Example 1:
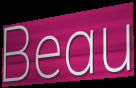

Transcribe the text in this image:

Beau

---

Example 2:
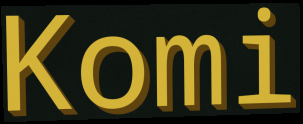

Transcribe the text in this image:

Komi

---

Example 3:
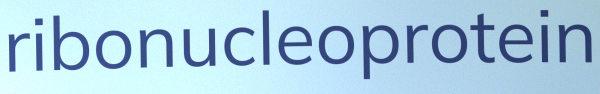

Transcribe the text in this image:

ribonucleoprotein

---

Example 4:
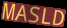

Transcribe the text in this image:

MASLD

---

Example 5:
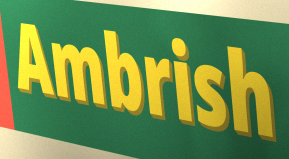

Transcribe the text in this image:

Ambrish